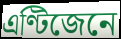
এণ্টিজেনে